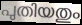
പുതിയതും